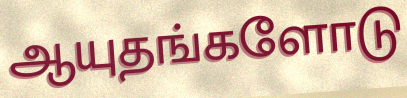
ஆயுதங்களோடு